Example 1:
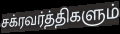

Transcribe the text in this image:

சக்ரவர்த்திகளும்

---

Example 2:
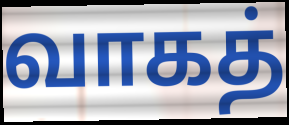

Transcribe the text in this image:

வாகத்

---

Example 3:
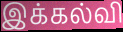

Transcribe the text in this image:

இக்கல்வி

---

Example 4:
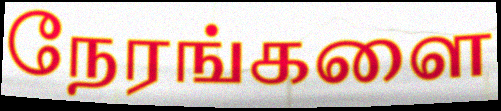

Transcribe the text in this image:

நேரங்களை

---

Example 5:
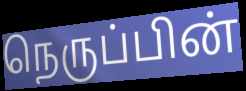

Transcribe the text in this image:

நெருப்பின்